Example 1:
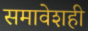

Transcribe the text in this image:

समावेशही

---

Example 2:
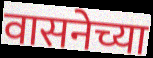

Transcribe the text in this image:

वासनेच्या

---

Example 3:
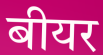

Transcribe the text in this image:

बीयर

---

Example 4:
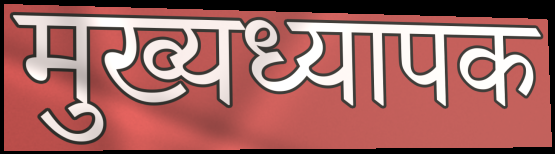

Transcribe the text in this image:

मुख्यध्यापक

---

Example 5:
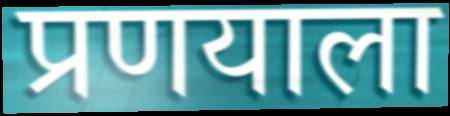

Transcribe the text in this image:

प्रणयाला